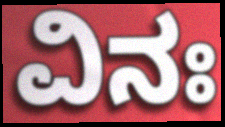
ವಿನಃ